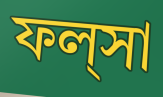
ফল্‌সা